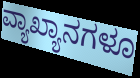
ವ್ಯಾಖ್ಯಾನಗಳೂ